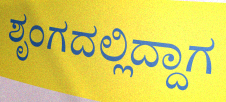
ಶೃಂಗದಲ್ಲಿದ್ದಾಗ